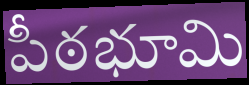
పీఠభూమి